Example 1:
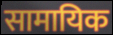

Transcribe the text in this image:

सामायिक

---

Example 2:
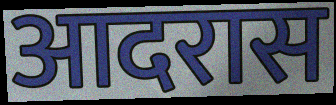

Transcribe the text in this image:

आदरास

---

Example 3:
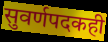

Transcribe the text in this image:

सुवर्णपदकही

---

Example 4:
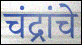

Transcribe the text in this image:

चंद्रांचे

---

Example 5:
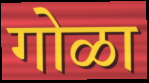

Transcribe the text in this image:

गोळा